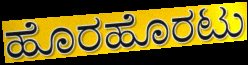
ಹೊರಹೊರಟು